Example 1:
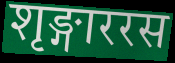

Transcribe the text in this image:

शृङ्गाररस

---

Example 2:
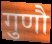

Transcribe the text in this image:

गुणौ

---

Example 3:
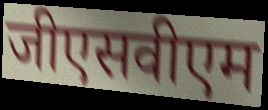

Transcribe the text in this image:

जीएसवीएम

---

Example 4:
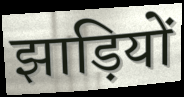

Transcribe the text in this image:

झाड़ियों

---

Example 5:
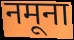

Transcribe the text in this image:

नमूना